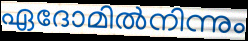
ഏദോമിൽനിന്നും